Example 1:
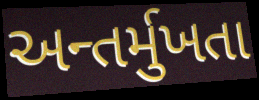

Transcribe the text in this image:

અન્તર્મુખતા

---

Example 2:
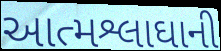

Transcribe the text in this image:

આત્મશ્લાઘાની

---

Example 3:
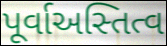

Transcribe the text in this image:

પૂર્વાઅસ્તિત્વ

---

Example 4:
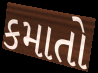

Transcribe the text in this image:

કમાતો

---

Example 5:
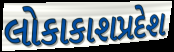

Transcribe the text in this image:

લોકાકાશપ્રદેશ